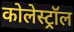
कोलेस्ट्रॉल